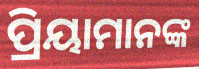
ପ୍ରିୟାମାନଙ୍କ